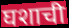
घशाची